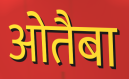
ओतैबा